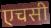
एचसी